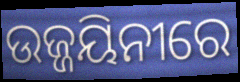
ଉଜ୍ଜୟିନୀରେ